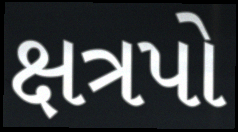
ક્ષત્રપો